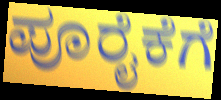
ಪೂರೈಕೆಗೆ